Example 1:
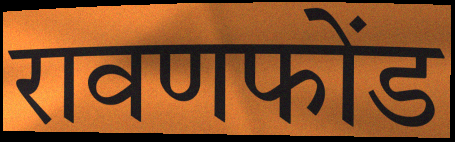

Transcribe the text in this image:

रावणफोंड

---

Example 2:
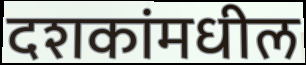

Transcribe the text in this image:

दशकांमधील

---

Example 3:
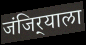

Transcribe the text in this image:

जंजिर्याला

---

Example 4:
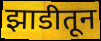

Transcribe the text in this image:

झाडीतून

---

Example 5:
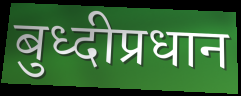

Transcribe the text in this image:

बुध्दीप्रधान